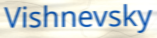
Vishnevsky